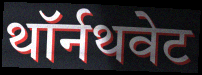
थॉर्नथवेट